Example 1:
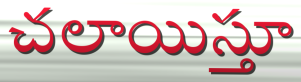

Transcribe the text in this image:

చలాయిస్తూ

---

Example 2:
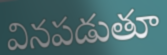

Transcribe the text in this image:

వినపడుతూ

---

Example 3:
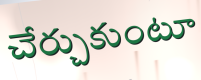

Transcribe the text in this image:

చేర్చుకుంటూ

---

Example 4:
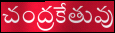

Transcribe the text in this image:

చంద్రకేతువు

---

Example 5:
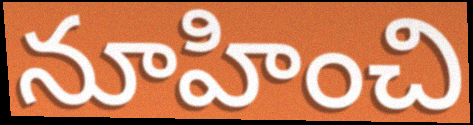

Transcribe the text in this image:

నూహించి